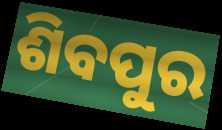
ଶିବପୁର